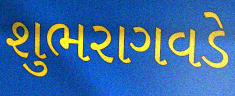
શુભરાગવડે